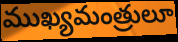
ముఖ్యమంత్రులూ